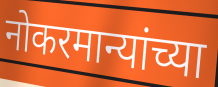
नोकरमान्यांच्या